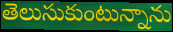
తెలుసుకుంటున్నాను